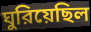
ঘুরিয়েছিল